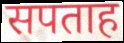
सपताह